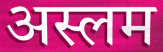
अस्लम